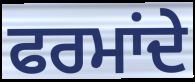
ਫਰਮਾਂਦੇ